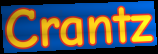
Crantz